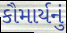
કૌમાર્યનું